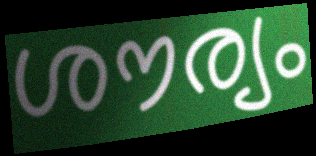
ശൗര്യം